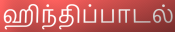
ஹிந்திப்பாடல்